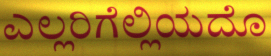
ಎಲ್ಲರಿಗೆಲ್ಲಿಯದೊ